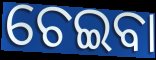
ଚେଇବା